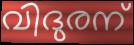
വിദുരന്